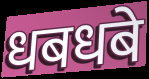
धबधबे